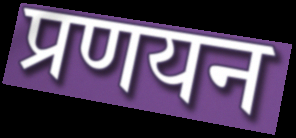
प्रणयन